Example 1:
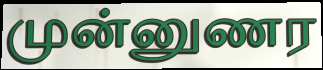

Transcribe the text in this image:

முன்னுணர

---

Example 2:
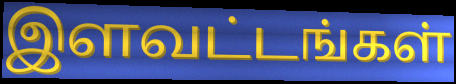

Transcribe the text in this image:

இளவட்டங்கள்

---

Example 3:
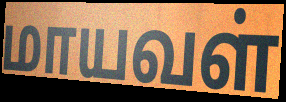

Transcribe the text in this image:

மாயவள்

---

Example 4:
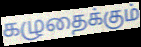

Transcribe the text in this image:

கழுதைக்கும்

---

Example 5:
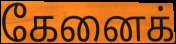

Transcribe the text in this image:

கேனைக்